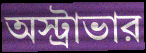
অস্ট্রাভার